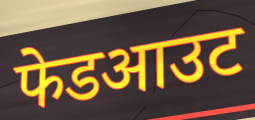
फेडआउट